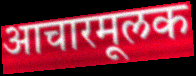
आचारमूलक